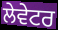
ਲੇਵੇਟਰ